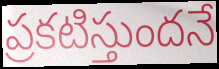
ప్రకటిస్తుందనే